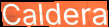
Caldera